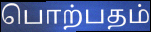
பொற்பதம்